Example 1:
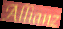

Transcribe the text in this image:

Allianz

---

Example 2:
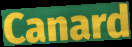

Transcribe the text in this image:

Canard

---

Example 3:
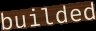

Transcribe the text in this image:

builded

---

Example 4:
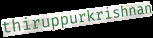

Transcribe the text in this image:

thiruppurkrishnan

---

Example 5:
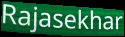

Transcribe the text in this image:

Rajasekhar